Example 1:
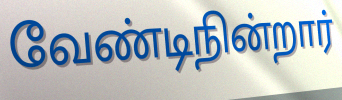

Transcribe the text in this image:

வேண்டிநின்றார்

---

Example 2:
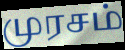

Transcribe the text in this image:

முரசம்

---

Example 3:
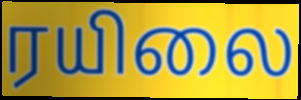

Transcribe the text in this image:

ரயிலை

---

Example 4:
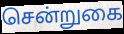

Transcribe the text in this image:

சென்றுகை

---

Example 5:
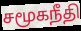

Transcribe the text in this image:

சமூகநீதி